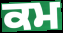
ਕਮ